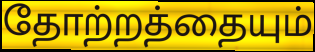
தோற்றத்தையும்